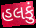
હલકું